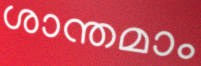
ശാന്തമാം